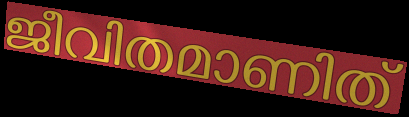
ജീവിതമാണിത്